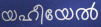
യഹീയേൽ